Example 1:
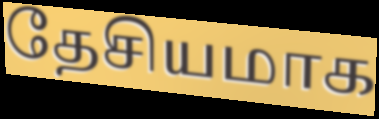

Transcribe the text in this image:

தேசியமாக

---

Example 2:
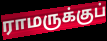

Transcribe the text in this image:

ராமருக்குப்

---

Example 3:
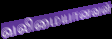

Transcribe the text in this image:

வலிமையானவள்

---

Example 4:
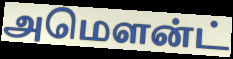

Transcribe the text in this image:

அமௌன்ட்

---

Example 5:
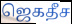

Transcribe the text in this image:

ஜெகதீச